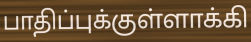
பாதிப்புக்குள்ளாக்கி